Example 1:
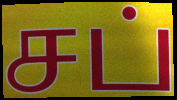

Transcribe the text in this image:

சப்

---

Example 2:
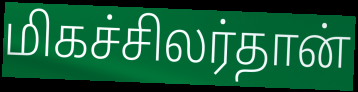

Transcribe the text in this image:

மிகச்சிலர்தான்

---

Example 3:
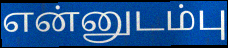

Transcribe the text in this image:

என்னுடம்பு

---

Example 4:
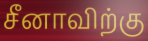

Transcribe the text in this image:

சீனாவிற்கு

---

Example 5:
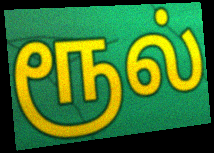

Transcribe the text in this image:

ரூல்